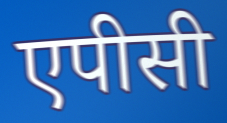
एपीसी